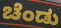
ಚೆಂಡು